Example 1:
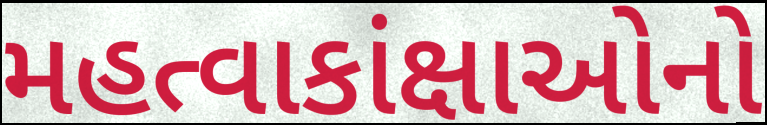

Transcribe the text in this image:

મહત્વાકાંક્ષાઓનો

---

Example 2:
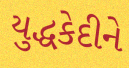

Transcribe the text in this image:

યુદ્ધકેદીને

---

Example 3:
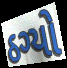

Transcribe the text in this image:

ઠગ્યો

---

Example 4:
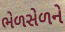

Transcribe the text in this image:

ભેળસેળને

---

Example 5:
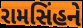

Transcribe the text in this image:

રામસિંહને